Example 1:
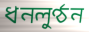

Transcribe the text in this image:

ধনলুণ্ঠন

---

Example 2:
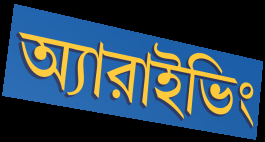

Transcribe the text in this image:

অ্যারাইভিং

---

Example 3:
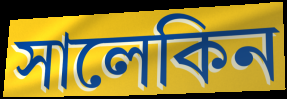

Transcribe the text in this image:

সালেকিন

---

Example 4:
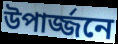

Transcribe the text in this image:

উপার্জ্জনে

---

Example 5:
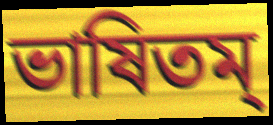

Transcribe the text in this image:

ভাষিতম্